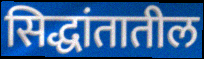
सिद्धांतातील